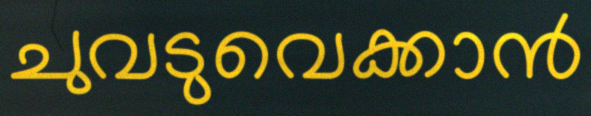
ചുവടുവെക്കാൻ